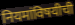
नियमांविषयीची